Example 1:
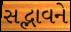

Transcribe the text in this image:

સદ્ભાવને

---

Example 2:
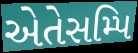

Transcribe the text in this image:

એતેસમ્પિ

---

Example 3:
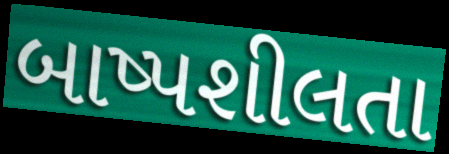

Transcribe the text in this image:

બાષ્પશીલતા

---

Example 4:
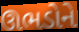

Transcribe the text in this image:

ઊભડોને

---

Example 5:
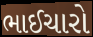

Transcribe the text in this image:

ભાઈચારો